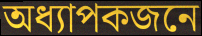
অধ্যাপকজনে